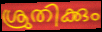
ശ്രുതിക്കും